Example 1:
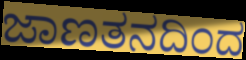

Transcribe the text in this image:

ಜಾಣತನದಿಂದ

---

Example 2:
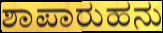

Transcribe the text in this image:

ಶಾಪಾರುಹನು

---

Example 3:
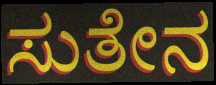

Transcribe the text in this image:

ಸುತೇನ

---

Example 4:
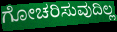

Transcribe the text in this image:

ಗೋಚರಿಸುವುದಿಲ್ಲ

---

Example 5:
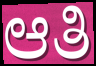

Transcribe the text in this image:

ಆತಿ